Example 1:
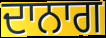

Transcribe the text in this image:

ਦਾਨਾਗ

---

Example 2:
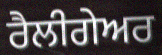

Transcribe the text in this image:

ਰੈਲੀਗੇਅਰ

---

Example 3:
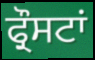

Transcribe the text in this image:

ਫ੍ਰੌਸਟਾਂ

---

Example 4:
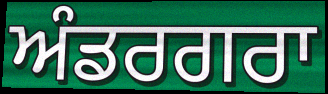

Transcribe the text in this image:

ਅੰਡਰਗਰਾ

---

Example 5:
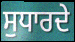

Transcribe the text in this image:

ਸੁਧਾਰਦੇ